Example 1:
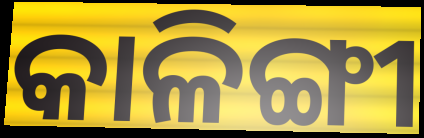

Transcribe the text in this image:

କାଳିଙ୍ଗୀ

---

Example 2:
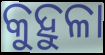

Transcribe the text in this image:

କୁହୁଳା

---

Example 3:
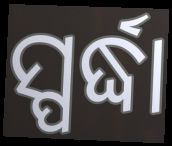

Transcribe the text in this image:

ସ୍ପର୍ଦ୍ଧା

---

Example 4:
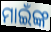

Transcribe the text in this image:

ମାଇଁଙ୍କ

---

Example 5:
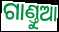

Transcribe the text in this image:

ଗାଣ୍ତୁଆ